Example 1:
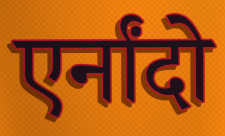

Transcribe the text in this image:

एर्नांदो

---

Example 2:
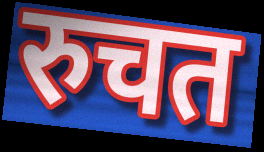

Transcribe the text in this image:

रुचत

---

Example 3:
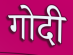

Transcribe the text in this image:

गोदी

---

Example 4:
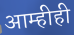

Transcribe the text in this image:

आम्हीही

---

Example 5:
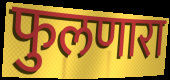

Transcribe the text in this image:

फुलणारा